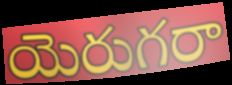
యెరుగరా